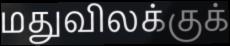
மதுவிலக்குக்